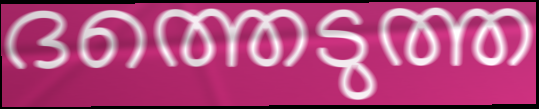
ദത്തെടുത്ത